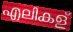
എലികള്